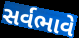
સર્વભાવે